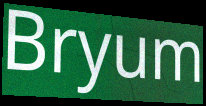
Bryum